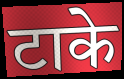
टाके